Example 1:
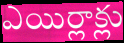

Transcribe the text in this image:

ఎయిర్లాక్లు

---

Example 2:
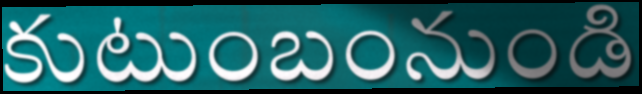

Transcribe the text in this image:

కుటుంబంనుండి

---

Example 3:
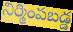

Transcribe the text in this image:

నిర్మింపబడ్డ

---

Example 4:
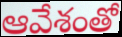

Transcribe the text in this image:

ఆవేశంతో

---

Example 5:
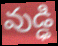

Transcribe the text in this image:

వుడ్ఢి